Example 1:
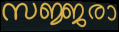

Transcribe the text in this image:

സജ്ജരാ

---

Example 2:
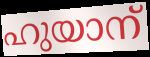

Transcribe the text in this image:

ഹുയാന്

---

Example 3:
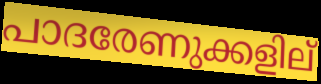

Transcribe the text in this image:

പാദരേണുക്കളില്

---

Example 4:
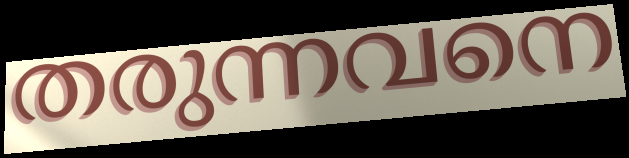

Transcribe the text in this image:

തരുന്നവനെ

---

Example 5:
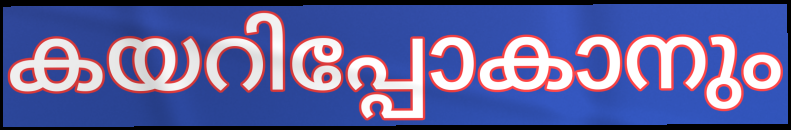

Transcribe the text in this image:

കയറിപ്പോകാനും